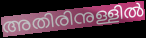
അതിരിനുള്ളിൽ